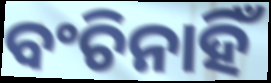
ବଂଚିନାହିଁ